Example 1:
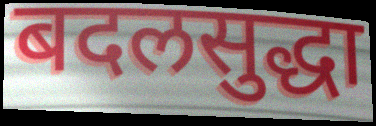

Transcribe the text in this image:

बदलसुद्धा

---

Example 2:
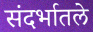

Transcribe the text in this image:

संदर्भातले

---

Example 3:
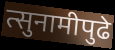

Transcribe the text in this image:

त्सुनामीपुढे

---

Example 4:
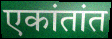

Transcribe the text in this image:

एकांतांत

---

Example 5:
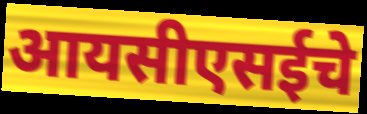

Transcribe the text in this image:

आयसीएसईचे